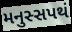
મનુસ્સપથં